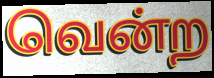
வென்ற